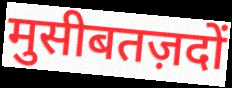
मुसीबतज़दों